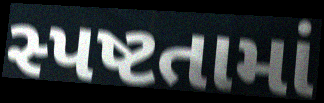
સ્પષ્ટતામાં